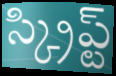
స్క్రిప్ట్